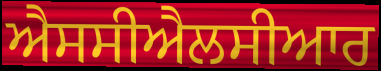
ਐਸਸੀਐਲਸੀਆਰ